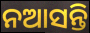
ନଆସନ୍ତି